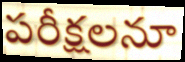
పరీక్షలనూ